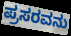
ಪ್ರಸರವನು